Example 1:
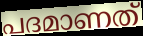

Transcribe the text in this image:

പദമാണത്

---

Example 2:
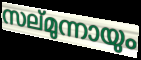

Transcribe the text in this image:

സല്മുന്നായും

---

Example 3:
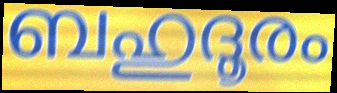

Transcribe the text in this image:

ബഹുദൂരം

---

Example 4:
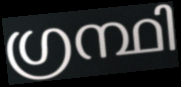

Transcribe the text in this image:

ഗ്രന്ഥി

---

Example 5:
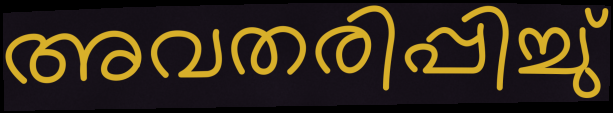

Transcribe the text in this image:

അവതരിപ്പിച്ചു്